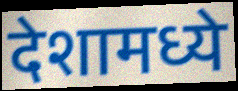
देशामध्ये